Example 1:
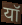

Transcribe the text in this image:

यॉ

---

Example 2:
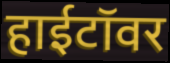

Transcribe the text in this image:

हाईटॉवर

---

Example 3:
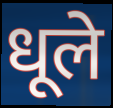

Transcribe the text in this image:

धूले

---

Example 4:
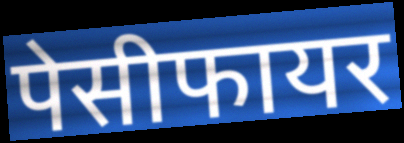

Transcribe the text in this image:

पेसीफायर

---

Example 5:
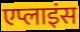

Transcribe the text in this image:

एप्लाइंस